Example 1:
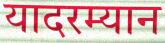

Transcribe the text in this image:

यादरम्यान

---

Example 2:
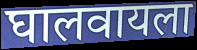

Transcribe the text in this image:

घालवायला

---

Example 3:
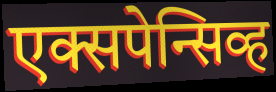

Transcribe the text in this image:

एक्सपेन्सिव्ह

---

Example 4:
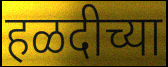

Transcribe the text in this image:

हळदीच्या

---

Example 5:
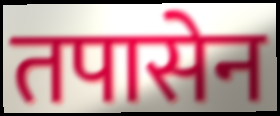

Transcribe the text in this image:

तपासेन